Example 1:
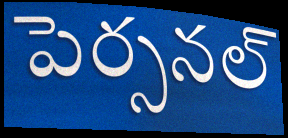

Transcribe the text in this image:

పెర్సనల్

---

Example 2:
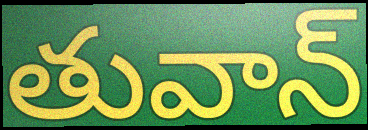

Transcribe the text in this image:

తువాన్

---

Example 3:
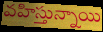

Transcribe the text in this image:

వహిస్తున్నాయి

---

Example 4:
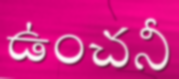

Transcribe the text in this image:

ఉంచనీ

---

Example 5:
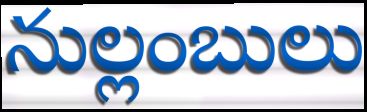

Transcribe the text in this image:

నుల్లంబులు